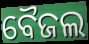
ବୈଜଲ